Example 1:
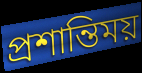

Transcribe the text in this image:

প্রশান্তিময়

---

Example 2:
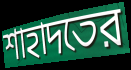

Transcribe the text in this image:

শাহাদতের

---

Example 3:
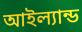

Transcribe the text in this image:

আইল্যান্ড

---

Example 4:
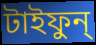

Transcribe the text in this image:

টাইফুন্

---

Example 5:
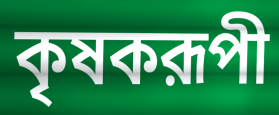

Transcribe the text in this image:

কৃষকরূপী